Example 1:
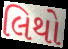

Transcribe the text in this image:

લિથો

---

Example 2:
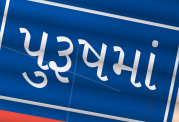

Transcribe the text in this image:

પુરૂષમાં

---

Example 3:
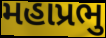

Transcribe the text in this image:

મહાપ્રભુ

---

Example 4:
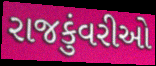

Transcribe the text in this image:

રાજકુંવરીઓ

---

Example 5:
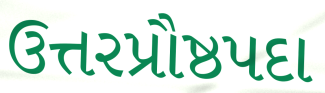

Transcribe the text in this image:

ઉત્તરપ્રૌષ્ઠપદા